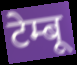
टेम्बू